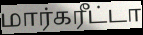
மார்கரீட்டா